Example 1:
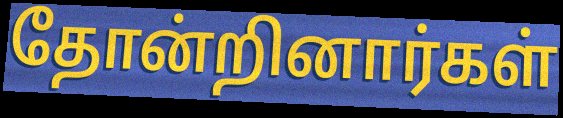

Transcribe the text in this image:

தோன்றினார்கள்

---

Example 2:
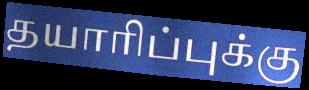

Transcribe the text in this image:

தயாரிப்புக்கு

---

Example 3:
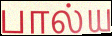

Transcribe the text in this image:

பால்ய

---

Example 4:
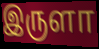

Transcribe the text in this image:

இருளா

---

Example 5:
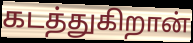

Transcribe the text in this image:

கடத்துகிறான்